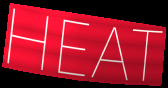
HEAT